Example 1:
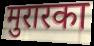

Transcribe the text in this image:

मुरारका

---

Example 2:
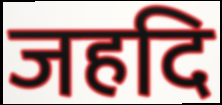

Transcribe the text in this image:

जहदि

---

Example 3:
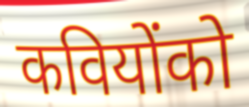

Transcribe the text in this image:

कवियोंको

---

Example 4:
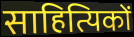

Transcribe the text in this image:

साहित्यिकों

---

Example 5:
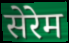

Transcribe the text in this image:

सेरेम